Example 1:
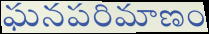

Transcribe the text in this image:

ఘనపరిమాణం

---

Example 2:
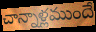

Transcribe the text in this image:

చాన్నాళ్లముందే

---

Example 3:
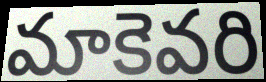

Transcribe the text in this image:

మాకెవరి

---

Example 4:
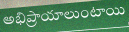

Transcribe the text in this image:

అభిప్రాయాలుంటాయి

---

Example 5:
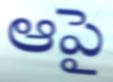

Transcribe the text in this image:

ఆపై